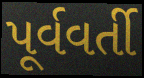
પૂર્વવર્તી